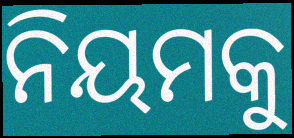
ନିୟମକୁ